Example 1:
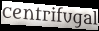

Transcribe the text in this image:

centrifugal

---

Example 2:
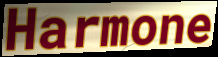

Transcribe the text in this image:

Harmone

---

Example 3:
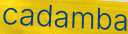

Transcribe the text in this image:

cadamba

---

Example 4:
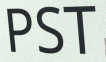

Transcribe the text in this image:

PST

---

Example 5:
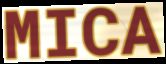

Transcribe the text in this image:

MICA